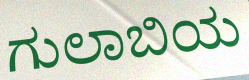
ಗುಲಾಬಿಯ